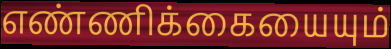
எண்ணிக்கையையும்